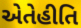
એતેહીતિ